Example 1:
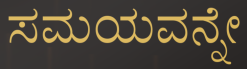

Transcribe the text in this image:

ಸಮಯವನ್ನೇ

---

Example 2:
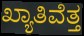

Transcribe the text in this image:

ಖ್ಯಾತಿವೆತ್ತ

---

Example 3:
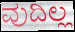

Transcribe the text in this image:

ವುದಿಲ್ಲ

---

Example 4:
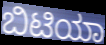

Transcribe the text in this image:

ಬಿಟಿಯಾ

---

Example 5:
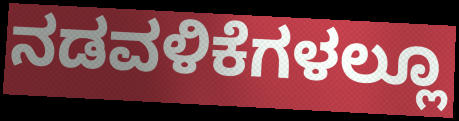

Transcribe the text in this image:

ನಡವಳಿಕೆಗಳಲ್ಲೂ